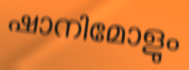
ഷാനിമോളും